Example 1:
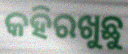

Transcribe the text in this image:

କହିରଖୁଛୁ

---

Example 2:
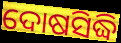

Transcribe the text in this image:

ଦୋଷସିଦ୍ଧି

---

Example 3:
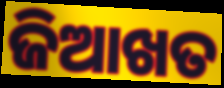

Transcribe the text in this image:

ଜିଆଖତ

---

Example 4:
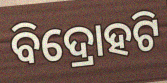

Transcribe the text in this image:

ବିଦ୍ରୋହଟି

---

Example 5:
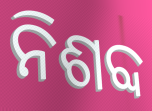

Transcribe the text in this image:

ନିଶବ୍ଦ